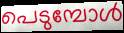
പെടുമ്പോൾ